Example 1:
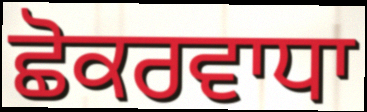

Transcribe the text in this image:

ਛੋਕਰਵਾਧਾ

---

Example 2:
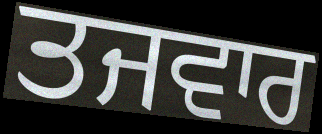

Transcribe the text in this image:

ਤਜਵਾਰ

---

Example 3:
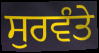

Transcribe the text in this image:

ਸੁਰਵੰਤੇ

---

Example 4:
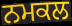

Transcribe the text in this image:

ਨਮਕਲ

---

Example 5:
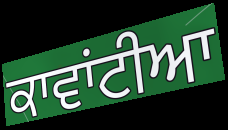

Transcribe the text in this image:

ਕਾਵਾਂਟੀਆ